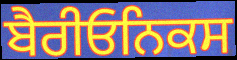
ਬੈਰੀਓਨਿਕਸ